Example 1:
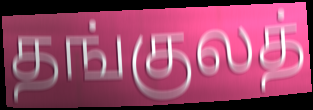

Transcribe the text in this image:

தங்குலத்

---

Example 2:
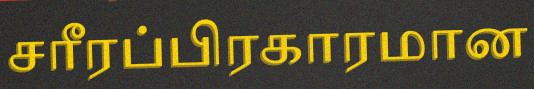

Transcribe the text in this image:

சரீரப்பிரகாரமான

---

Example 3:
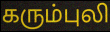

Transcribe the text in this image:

கரும்புலி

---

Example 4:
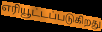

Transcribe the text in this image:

எரியூட்டப்படுகிறது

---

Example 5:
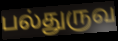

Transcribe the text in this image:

பல்துருவ